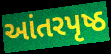
આંતરપૃષ્ઠ